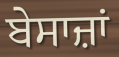
ਬੇਸਾਜ਼ਾਂ